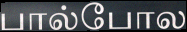
பால்போல